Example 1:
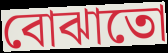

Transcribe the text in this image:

বোঝাতো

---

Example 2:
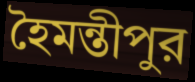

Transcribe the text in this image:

হৈমন্তীপুর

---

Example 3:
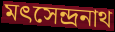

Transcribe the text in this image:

মৎসেন্দ্রনাথ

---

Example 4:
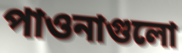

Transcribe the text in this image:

পাওনাগুলো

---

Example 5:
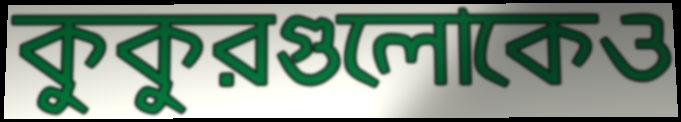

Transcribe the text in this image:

কুকুরগুলোকেও